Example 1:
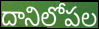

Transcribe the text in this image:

దానిలోపల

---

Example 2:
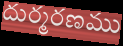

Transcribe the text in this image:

దుర్మరణము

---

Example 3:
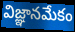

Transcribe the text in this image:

విజ్ఞానమేకం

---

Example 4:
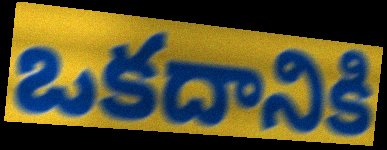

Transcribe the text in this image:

ఒకదానికి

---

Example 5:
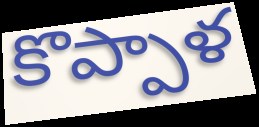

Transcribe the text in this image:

కొప్పాళ